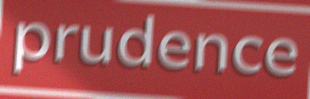
prudence